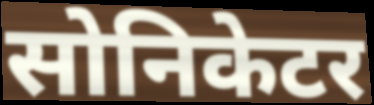
सोनिकेटर